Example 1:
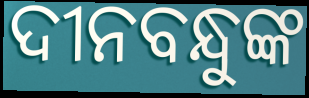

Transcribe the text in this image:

ଦୀନବନ୍ଧୁଙ୍କ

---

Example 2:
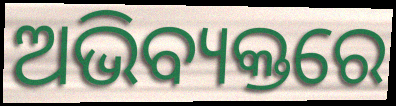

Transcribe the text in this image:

ଅଭିବ୍ୟକ୍ତରେ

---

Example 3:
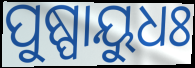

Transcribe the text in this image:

ପୁଷ୍ପାୟୁଧଃ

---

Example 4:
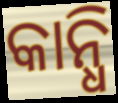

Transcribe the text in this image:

କାନ୍ଧି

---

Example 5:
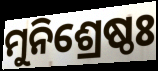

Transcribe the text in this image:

ମୁନିଶ୍ରେଷ୍ଠଃ